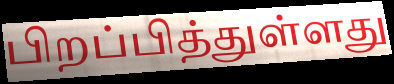
பிறப்பித்துள்ளது